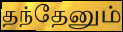
தந்தேனும்